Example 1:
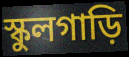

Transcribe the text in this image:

স্কুলগাড়ি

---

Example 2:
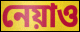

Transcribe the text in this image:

নেয়াও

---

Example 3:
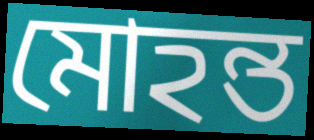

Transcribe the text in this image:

মোহন্ত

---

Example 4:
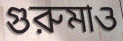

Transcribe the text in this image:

গুরুমাও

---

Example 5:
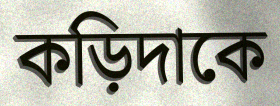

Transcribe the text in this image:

কড়িদাকে